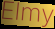
Elmy